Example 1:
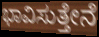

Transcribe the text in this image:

ಭಾವಿಸುತ್ತೇನೆ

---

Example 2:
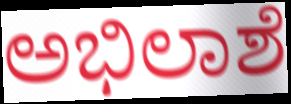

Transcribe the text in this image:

ಅಭಿಲಾಶೆ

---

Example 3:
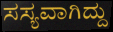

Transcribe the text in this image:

ಸಸ್ಯವಾಗಿದ್ದು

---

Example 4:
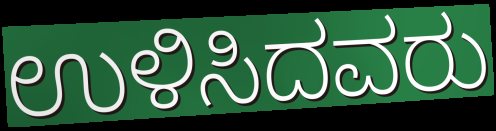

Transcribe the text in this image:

ಉಳಿಸಿದವರು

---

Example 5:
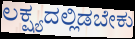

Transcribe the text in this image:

ಲಕ್ಷ್ಯದಲ್ಲಿಡಬೇಕು